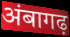
अंबागढ़